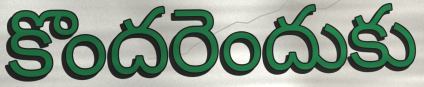
కొందరెందుకు